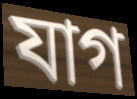
যাগ